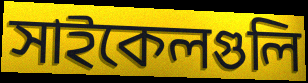
সাইকেলগুলি